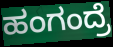
ಹಂಗಂದ್ರೆ